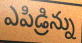
ఎపిడ్రిన్ను